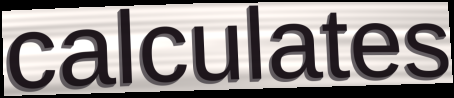
calculates